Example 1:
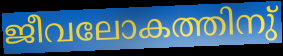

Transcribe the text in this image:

ജീവലോകത്തിനു്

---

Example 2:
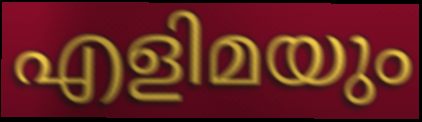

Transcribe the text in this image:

എളിമയും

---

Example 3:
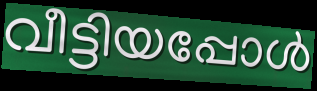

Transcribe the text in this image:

വീട്ടിയപ്പോൾ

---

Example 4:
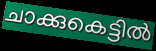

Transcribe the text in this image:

ചാക്കുകെട്ടിൽ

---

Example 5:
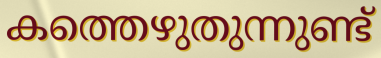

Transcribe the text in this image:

കത്തെഴുതുന്നുണ്ട്